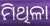
ମିଥିଳା